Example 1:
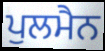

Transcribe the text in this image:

ਪੁਲਮੈਨ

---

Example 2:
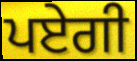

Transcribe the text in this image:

ਪਏਗੀ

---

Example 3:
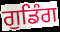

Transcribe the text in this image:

ਗੁਡਿੰਗ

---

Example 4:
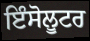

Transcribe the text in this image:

ਇੰਸੋਲੂਟਰ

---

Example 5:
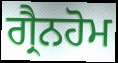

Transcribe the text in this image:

ਗ੍ਰੈਨਹੋਮ